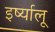
इर्ष्यालू